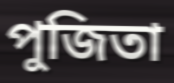
পুজিতা